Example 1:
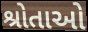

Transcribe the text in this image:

શ્રોતાઓ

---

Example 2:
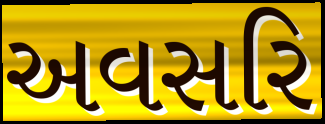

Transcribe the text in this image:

અવસરિ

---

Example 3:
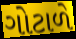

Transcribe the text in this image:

ગોટાળે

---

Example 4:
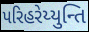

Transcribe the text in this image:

પરિહરેય્યુન્તિ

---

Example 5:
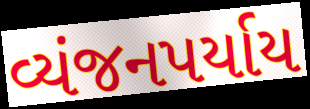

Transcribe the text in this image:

વ્યંજનપર્યાય